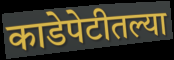
काडेपेटीतल्या